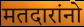
मतदारांनो